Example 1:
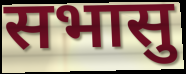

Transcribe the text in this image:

सभासु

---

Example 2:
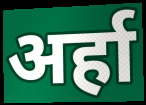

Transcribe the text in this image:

अर्हा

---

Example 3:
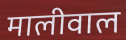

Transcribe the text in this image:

मालीवाल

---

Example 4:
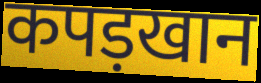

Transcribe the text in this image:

कपड़खान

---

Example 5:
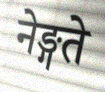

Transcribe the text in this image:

नेङ्गते